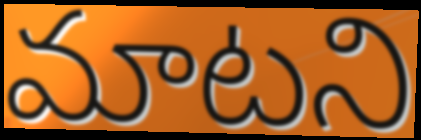
మాటని